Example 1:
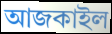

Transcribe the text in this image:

আজকাইল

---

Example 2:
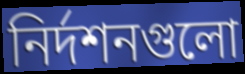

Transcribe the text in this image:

নির্দশনগুলো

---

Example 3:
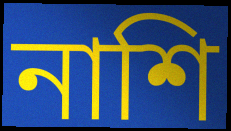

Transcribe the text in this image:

নাশি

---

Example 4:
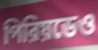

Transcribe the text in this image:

পিরিয়ডেও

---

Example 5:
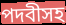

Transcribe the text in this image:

পদবীসহ